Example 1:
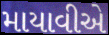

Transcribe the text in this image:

માયાવીએ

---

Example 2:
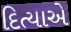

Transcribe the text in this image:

દિત્યાએ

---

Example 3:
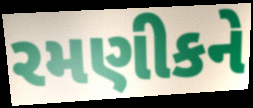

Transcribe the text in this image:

રમણીકને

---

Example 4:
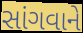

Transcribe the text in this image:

સાંગવાને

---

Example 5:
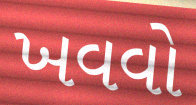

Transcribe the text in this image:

ખવવો